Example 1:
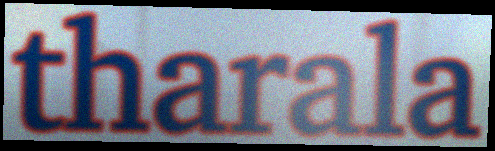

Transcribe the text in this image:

tharala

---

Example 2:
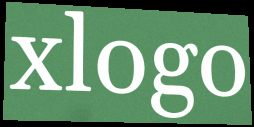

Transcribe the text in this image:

xlogo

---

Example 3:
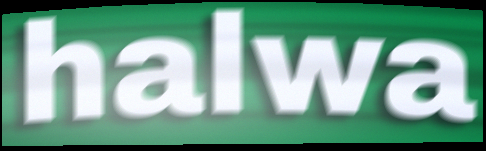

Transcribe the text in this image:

halwa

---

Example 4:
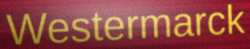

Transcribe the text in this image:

Westermarck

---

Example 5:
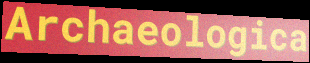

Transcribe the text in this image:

Archaeologica